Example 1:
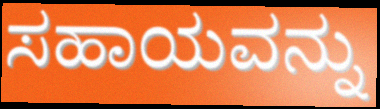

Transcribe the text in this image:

ಸಹಾಯವನ್ನು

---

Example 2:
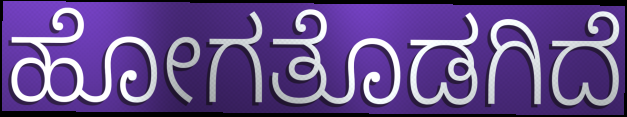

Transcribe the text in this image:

ಹೋಗತೊಡಗಿದೆ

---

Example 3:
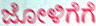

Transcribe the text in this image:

ಜೋಳಿಗೆಗೆ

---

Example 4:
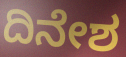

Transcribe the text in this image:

ದಿನೇಶ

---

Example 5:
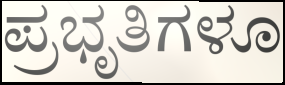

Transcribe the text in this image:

ಪ್ರಭೃತಿಗಳೂ